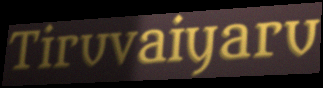
Tiruvaiyaru